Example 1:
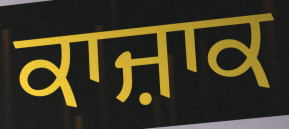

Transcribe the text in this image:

ਕਾਜ਼ਾਕ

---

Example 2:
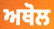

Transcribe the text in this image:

ਅਥੋਲ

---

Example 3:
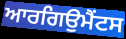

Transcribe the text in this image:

ਆਰਗਿਉਮੈਂਟਸ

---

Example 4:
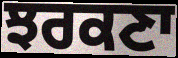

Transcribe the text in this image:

ਝਰਕਣਾ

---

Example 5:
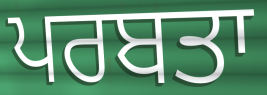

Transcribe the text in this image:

ਪਰਬਤਾ